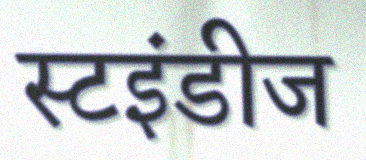
स्टइंडीज